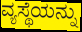
ವ್ಯಸ್ಥೆಯನ್ನು